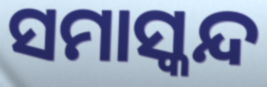
ସମାସ୍କନ୍ଦ